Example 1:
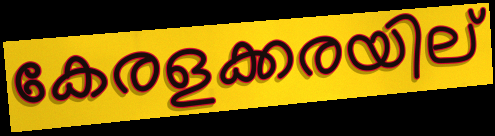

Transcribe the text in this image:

കേരളക്കരയില്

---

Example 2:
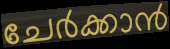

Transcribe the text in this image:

ചേർക്കാൻ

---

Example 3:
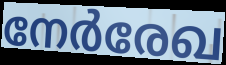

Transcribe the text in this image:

നേർരേഖ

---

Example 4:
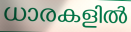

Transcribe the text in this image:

ധാരകളിൽ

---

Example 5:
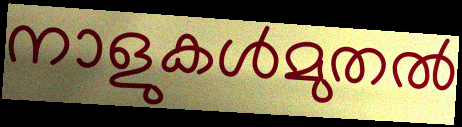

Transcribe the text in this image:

നാളുകൾമുതൽ